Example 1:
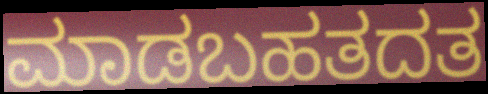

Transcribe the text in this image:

ಮಾಡಬಹತದತ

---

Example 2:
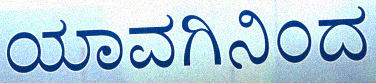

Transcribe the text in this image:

ಯಾವಗಿನಿಂದ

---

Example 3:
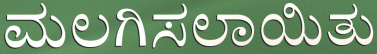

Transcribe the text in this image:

ಮಲಗಿಸಲಾಯಿತು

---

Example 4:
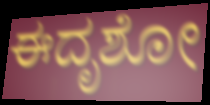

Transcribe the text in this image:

ಈದೃಶೋ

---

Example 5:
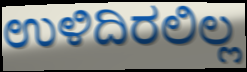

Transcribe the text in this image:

ಉಳಿದಿರಲಿಲ್ಲ